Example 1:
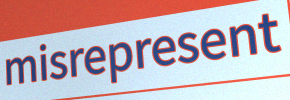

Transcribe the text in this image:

misrepresent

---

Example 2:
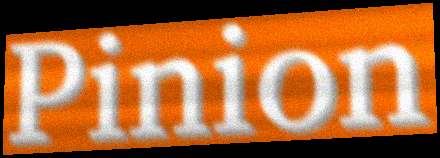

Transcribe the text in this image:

Pinion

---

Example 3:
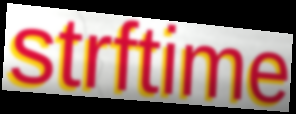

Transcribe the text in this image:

strftime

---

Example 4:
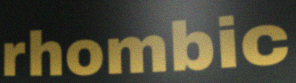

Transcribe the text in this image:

rhombic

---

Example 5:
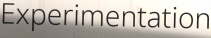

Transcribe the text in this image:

Experimentation